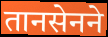
तानसेनने